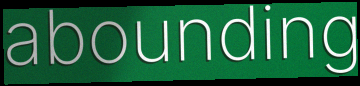
abounding